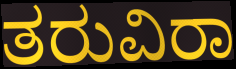
ತರುವಿರಾ